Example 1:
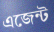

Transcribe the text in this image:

এজেন্ট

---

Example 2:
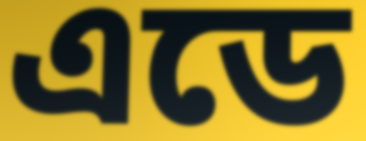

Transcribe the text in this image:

এডে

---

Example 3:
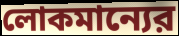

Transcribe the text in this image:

লোকমান্যের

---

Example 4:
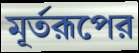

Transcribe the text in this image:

মূর্তরূপের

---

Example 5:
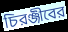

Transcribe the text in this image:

চিরঞ্জীবের